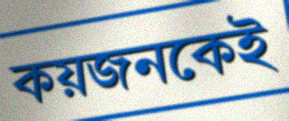
কয়জনকেই